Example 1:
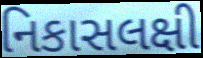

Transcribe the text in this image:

નિકાસલક્ષી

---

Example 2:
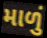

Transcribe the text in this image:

માળું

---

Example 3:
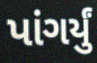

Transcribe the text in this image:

પાંગર્યું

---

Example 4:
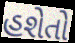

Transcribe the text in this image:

હશેતો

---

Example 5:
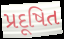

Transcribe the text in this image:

પ્રદૂષિત